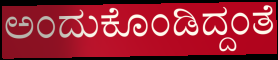
ಅಂದುಕೊಂಡಿದ್ದಂತೆ